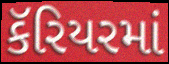
કૅરિયરમાં